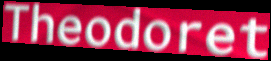
Theodoret